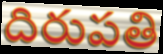
దిరుపతి